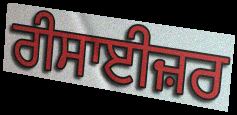
ਰੀਸਾਈਜ਼ਰ